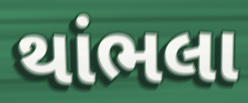
થાંભલા